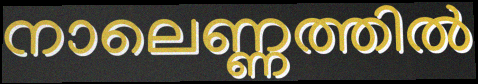
നാലെണ്ണത്തിൽ